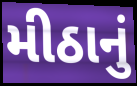
મીઠાનું